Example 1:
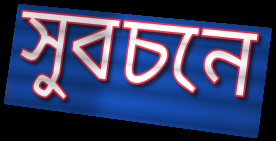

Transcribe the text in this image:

সুবচনে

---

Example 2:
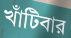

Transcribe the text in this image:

খাঁটিবার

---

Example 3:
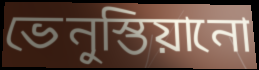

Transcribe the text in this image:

ভেনুস্তিয়ানো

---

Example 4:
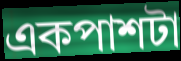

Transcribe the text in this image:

একপাশটা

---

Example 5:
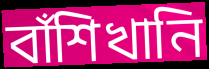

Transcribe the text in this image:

বাঁশিখানি